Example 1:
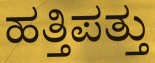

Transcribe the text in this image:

ಹತ್ತಿಪತ್ತು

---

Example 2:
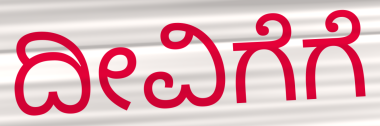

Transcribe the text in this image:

ದೀವಿಗೆಗೆ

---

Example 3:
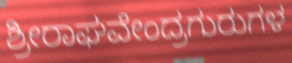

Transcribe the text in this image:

ಶ್ರೀರಾಘವೇಂದ್ರಗುರುಗಳ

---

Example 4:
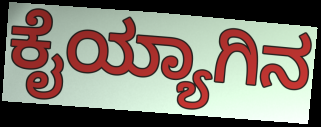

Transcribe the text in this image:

ಕೈಯ್ಯಾಗಿನ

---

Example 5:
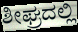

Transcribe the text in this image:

ಶೀಘ್ರದಲ್ಲಿ